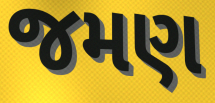
જમણ